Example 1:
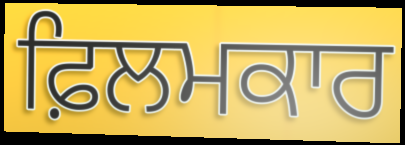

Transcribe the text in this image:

ਫ਼ਿਲਮਕਾਰ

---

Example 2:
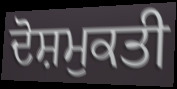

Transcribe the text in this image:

ਦੋਸ਼ਮੁਕਤੀ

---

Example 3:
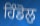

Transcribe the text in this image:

ਹਿੰਡੋਲੁ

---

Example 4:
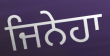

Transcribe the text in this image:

ਜਿਨੇਹਾ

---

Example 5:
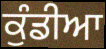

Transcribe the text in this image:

ਕੁੰਡੀਆ